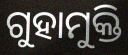
ଗୁହାମୁକ୍ତି